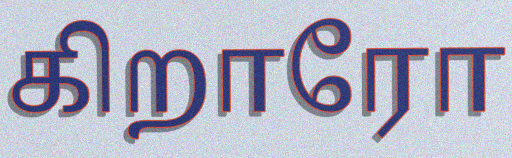
கிறாரோ